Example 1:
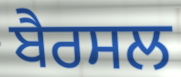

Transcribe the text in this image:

ਬੈਰਸਲ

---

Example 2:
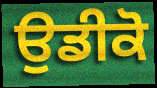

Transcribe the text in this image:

ਉਡੀਕੋ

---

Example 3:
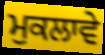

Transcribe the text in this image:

ਮੁਕਲਾਵੇ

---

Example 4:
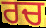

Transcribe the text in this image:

ਰਚ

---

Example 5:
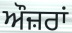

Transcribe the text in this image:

ਔਜ਼ਰਾਂ